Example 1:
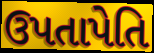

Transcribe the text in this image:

ઉપતાપેતિ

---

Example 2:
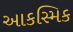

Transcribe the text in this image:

આકસ્મિક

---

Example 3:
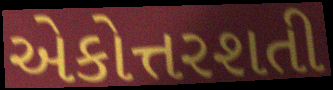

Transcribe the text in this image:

એકોત્તરશતી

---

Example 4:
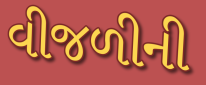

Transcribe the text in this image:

વીજળીની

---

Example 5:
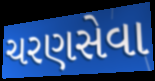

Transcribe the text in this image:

ચરણસેવા